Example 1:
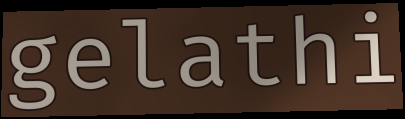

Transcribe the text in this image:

gelathi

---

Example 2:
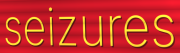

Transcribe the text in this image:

seizures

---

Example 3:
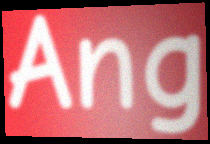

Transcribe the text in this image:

Ang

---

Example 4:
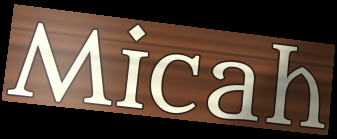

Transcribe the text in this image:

Micah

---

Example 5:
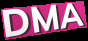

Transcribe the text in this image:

DMA